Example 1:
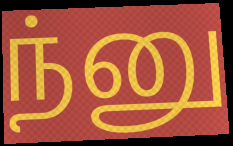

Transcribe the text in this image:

ந்னு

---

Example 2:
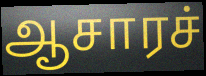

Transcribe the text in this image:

ஆசாரச்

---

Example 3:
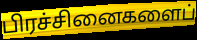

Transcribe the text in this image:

பிரச்சினைகளைப்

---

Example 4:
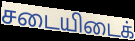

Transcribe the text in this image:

சடையிடைக்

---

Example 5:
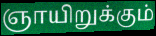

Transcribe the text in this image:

ஞாயிறுக்கும்